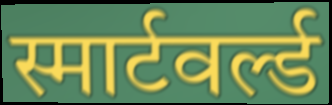
स्मार्टवर्ल्ड